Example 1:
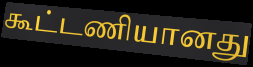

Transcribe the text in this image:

கூட்டணியானது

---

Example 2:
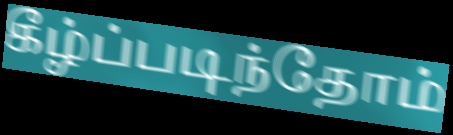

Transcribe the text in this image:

கீழ்ப்படிந்தோம்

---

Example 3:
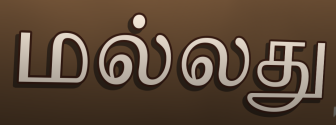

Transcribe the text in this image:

மல்லது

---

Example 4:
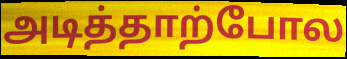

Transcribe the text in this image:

அடித்தாற்போல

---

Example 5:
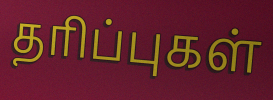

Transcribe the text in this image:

தரிப்புகள்